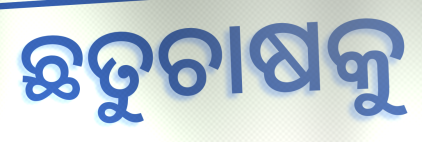
ଛତୁଚାଷକୁ